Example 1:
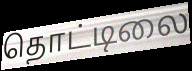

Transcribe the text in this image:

தொட்டிலை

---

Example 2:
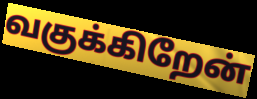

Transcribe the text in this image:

வகுக்கிறேன்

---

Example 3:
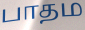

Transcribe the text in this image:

பாதம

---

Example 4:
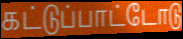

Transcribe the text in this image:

கட்டுப்பாட்டோடு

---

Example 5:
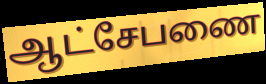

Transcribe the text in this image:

ஆட்சேபணை